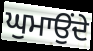
ਘੁਮਾਉਂਦੇ